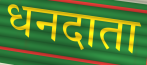
धनदाता